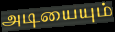
அடியையும்